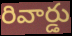
రివార్డు